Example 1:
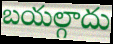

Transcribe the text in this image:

బయల్గాదు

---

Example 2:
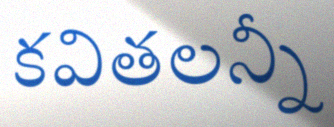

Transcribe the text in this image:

కవితలన్నీ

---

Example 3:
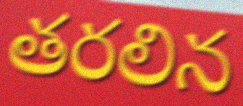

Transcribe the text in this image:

తరలిన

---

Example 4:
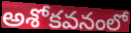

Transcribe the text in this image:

అశోకవనంలో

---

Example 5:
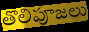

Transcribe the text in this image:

తొలిపూజలు